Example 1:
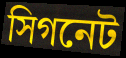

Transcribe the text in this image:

সিগনেট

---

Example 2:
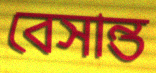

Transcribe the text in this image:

বেসান্ত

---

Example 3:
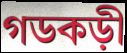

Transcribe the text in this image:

গডকড়ী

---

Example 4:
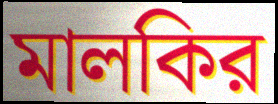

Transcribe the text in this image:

মালকির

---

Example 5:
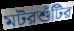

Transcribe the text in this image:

মটরশুঁটির